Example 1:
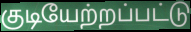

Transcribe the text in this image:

குடியேற்றப்பட்டு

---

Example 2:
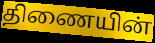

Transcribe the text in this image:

திணையின்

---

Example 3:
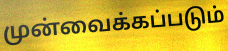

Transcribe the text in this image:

முன்வைக்கப்படும்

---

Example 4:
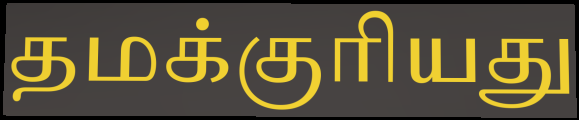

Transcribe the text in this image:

தமக்குரியது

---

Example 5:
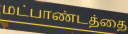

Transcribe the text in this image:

மட்பாண்டத்தை